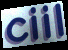
ciil